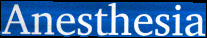
Anesthesia